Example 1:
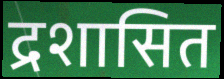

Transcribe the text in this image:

द्रशासित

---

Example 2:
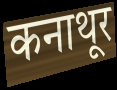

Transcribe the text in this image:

कनाथूर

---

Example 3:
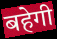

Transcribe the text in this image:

बहेगी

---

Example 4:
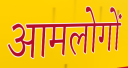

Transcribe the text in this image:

आमलोगों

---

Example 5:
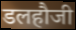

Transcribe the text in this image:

डलहौजी